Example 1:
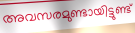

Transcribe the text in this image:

അവസരമുണ്ടായിട്ടുണ്ട്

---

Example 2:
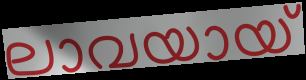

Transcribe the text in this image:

ലാവയായ്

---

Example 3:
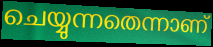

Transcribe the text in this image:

ചെയ്യുന്നതെന്നാണ്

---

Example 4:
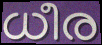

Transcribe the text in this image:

ധീര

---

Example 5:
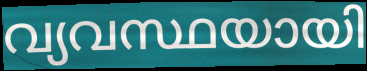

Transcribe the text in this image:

വ്യവസ്ഥയായി